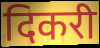
दिकरी